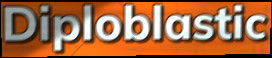
Diploblastic